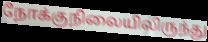
நோக்குநிலையிலிருந்து